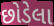
છોડેલા